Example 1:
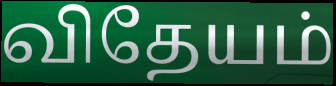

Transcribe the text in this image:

விதேயம்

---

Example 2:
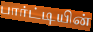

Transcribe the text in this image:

பார்ட்டியின்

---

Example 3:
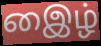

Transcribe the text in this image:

இைழ்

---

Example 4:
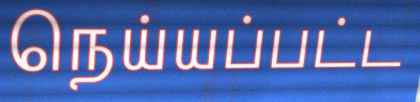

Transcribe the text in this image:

நெய்யப்பட்ட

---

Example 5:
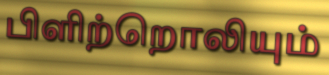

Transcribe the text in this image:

பிளிற்றொலியும்